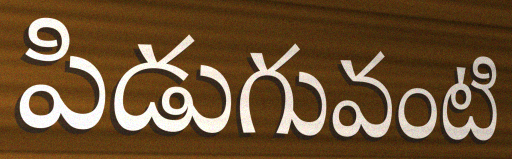
పిడుగువంటి